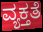
ವ್ಯಕ್ತತೆ